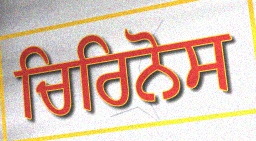
ਚਿਰਿਨੋਸ